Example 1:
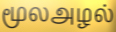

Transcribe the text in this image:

மூலஅழல்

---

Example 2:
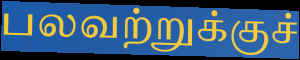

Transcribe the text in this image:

பலவற்றுக்குச்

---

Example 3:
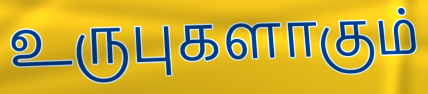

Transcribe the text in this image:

உருபுகளாகும்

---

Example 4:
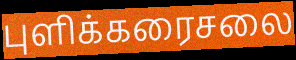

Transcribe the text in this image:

புளிக்கரைசலை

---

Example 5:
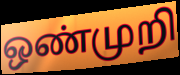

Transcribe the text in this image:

ஒண்முறி